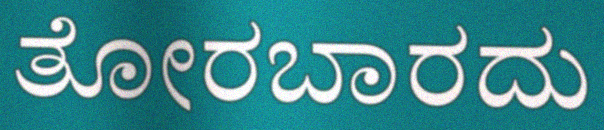
ತೋರಬಾರದು